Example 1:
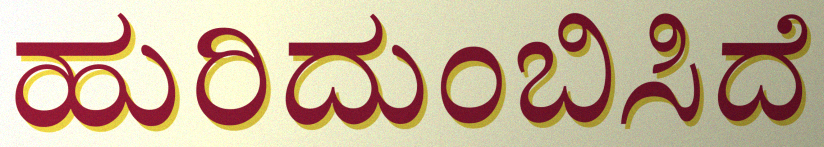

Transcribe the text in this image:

ಹುರಿದುಂಬಿಸಿದೆ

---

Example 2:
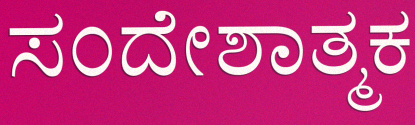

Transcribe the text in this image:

ಸಂದೇಶಾತ್ಮಕ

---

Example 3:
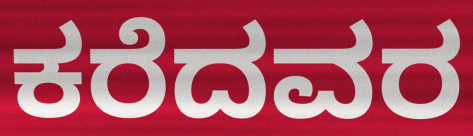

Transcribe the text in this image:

ಕರೆದವರ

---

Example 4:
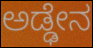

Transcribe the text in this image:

ಅಡ್ಢೇನ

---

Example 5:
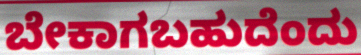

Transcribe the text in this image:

ಬೇಕಾಗಬಹುದೆಂದು